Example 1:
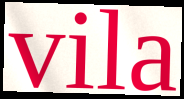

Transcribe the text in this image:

vila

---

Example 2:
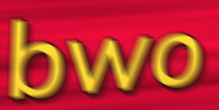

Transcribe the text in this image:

bwo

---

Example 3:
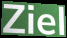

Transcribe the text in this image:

Ziel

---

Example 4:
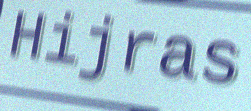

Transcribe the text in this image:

Hijras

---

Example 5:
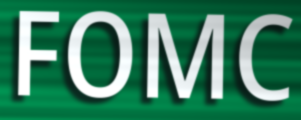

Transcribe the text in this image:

FOMC